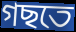
গছতে